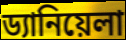
ড্যানিয়েলা